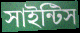
সাইন্টিস